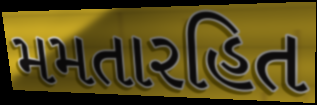
મમતારહિત